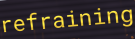
refraining